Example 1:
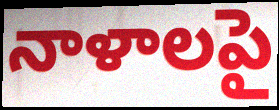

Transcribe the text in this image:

నాళాలపై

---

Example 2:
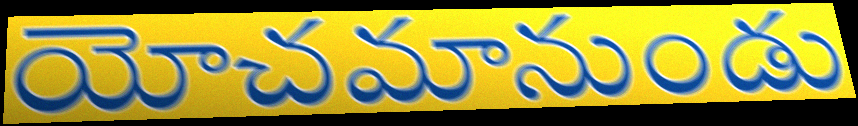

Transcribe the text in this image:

యోచమానుండు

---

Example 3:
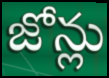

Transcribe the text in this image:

జోన్లు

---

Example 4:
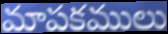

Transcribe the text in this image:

మాపకములు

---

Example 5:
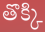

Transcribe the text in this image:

తొక్కి